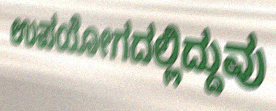
ಉಪಯೋಗದಲ್ಲಿದ್ದುವು